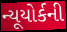
ન્યૂયોર્કની